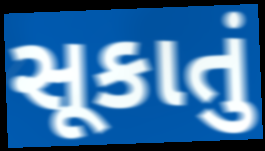
સૂકાતું